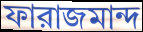
ফারাজমান্দ